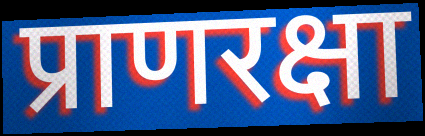
प्राणरक्षा